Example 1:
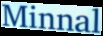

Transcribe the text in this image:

Minnal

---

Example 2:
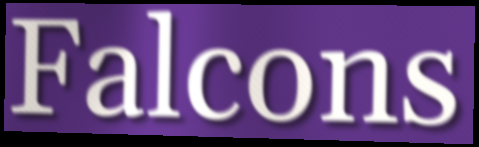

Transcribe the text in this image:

Falcons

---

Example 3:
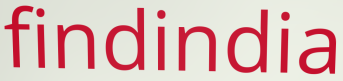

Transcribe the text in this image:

findindia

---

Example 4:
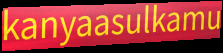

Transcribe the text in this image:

kanyaasulkamu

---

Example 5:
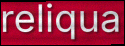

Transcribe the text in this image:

reliqua